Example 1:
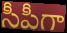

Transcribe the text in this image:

సీపీగా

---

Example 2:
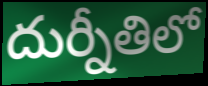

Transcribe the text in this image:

దుర్నీతిలో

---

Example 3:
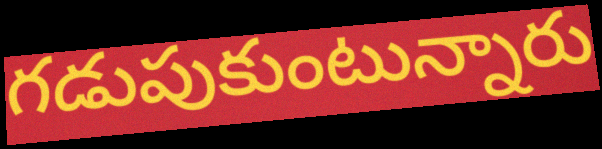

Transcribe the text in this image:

గడుపుకుంటున్నారు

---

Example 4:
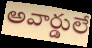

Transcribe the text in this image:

అవార్డులే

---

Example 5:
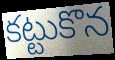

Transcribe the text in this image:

కట్టుకొన